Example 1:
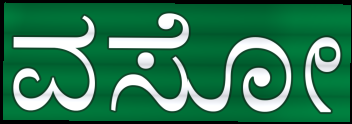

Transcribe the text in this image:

ವಸೋ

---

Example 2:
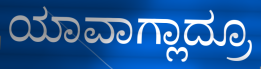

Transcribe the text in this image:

ಯಾವಾಗ್ಲಾದ್ರೂ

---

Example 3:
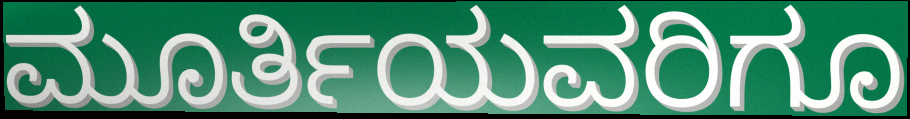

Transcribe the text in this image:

ಮೂರ್ತಿಯವರಿಗೂ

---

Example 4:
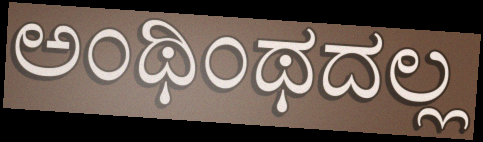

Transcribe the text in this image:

ಅಂಥಿಂಥದಲ್ಲ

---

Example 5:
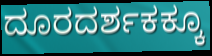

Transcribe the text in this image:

ದೂರದರ್ಶಕಕ್ಕೂ